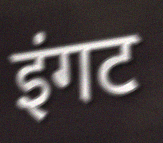
इंगट